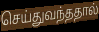
செய்துவந்ததால்